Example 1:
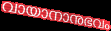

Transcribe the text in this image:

വായാനാനുഭവം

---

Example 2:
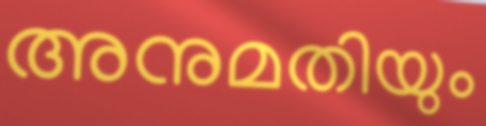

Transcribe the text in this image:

അനുമതിയും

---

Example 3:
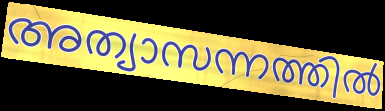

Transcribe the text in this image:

അത്യാസന്നത്തിൽ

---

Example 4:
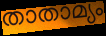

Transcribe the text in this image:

താതാമ്യം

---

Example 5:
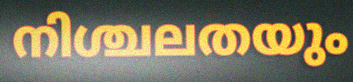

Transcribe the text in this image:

നിശ്ചലതയും